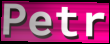
Petr